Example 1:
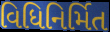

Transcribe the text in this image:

વિધિનિર્મિત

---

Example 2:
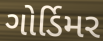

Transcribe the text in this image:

ગોર્ડિમર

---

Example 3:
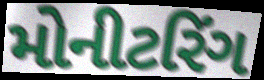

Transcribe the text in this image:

મોનીટરિંગ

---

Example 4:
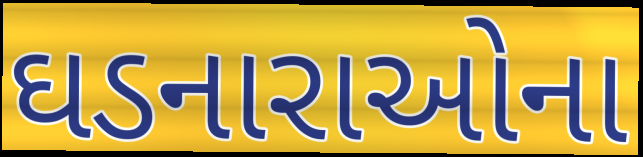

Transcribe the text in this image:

ઘડનારાઓના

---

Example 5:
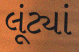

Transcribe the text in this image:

લૂંટ્યાં